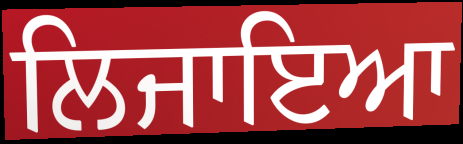
ਲਿਜਾਇਆ